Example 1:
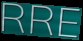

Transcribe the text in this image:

RRE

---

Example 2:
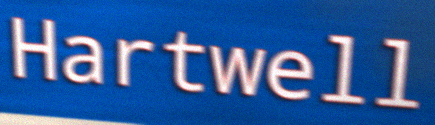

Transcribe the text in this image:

Hartwell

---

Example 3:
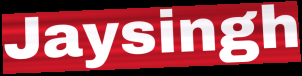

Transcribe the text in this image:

Jaysingh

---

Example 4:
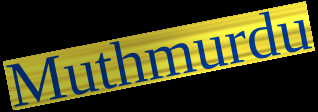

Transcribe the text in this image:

Muthmurdu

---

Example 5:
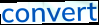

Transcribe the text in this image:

convert